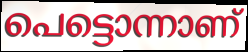
പെട്ടൊന്നാണ്